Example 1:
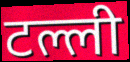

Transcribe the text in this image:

टल्ली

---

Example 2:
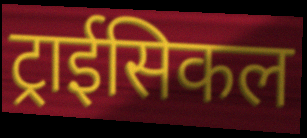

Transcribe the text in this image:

ट्राईसिकल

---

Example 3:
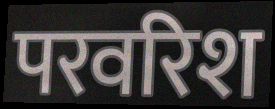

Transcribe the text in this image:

परवरिश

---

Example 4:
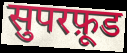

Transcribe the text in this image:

सुपरफ़ूड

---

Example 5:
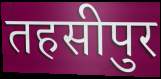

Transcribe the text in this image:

तहसीपुर